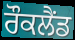
ਰੌਕਲੈਂਡ